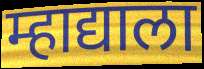
म्हाद्याला